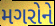
મગરોને